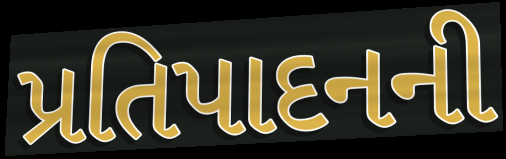
પ્રતિપાદનની